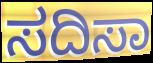
ಸದಿಸಾ